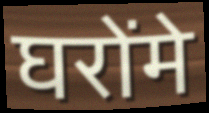
घरोंमे